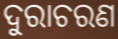
ଦୁରାଚରଣ